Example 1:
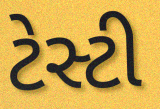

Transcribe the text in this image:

ટેસ્ટી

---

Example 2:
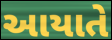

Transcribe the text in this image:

આયાતે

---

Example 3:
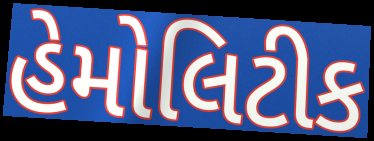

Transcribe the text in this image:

હેમોલિટીક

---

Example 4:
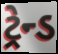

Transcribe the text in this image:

ટ્રેન્ડ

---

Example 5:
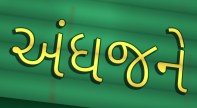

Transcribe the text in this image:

અંધજને